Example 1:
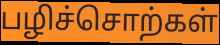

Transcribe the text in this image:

பழிச்சொற்கள்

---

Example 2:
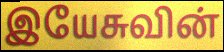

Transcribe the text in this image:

இயேசுவின்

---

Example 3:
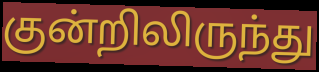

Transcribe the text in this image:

குன்றிலிருந்து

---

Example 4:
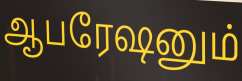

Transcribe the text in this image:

ஆபரேஷனும்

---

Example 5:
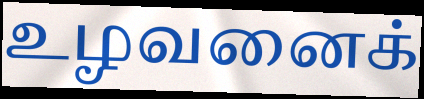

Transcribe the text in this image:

உழவனைக்